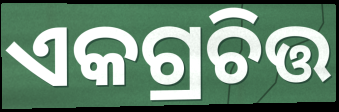
ଏକଗ୍ରଚିତ୍ତ